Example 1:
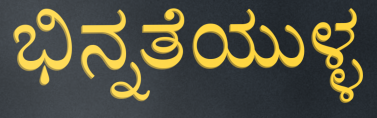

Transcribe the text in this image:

ಭಿನ್ನತೆಯುಳ್ಳ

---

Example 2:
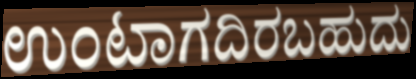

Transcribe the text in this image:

ಉಂಟಾಗದಿರಬಹುದು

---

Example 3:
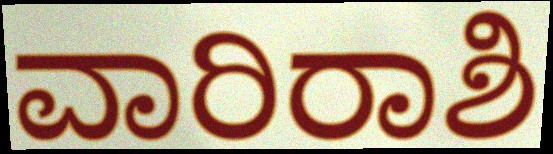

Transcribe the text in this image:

ವಾರಿರಾಶಿ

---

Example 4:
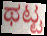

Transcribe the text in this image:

ಥಟ್ಟ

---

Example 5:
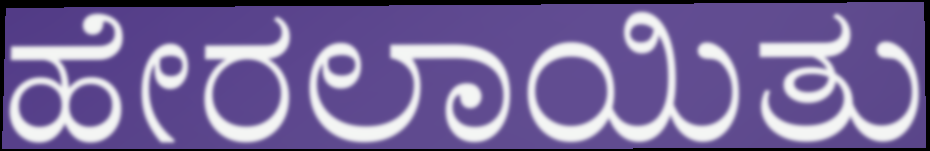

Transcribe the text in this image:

ಹೇರಲಾಯಿತು